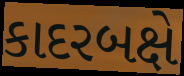
કાદરબક્ષે